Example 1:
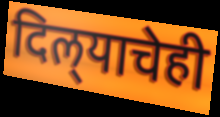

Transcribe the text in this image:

दिल्याचेही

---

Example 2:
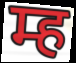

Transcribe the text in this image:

म्ह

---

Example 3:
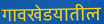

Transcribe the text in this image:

गावखेडयातील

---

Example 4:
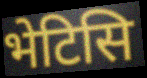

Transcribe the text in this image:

भेटिसि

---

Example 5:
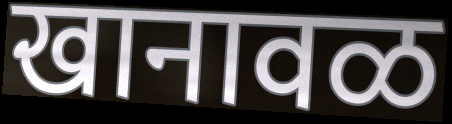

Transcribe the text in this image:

खानावळ